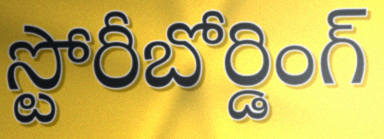
స్టోరీబోర్డింగ్